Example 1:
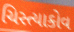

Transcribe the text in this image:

ચિસ્ત્યાકોવ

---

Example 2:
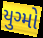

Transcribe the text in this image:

યુગ્મો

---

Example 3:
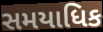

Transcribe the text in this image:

સમયાધિક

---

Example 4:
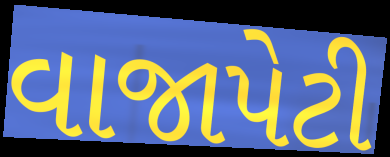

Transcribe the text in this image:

વાજાપેટી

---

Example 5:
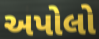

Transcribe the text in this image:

અપોલો